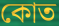
কোত